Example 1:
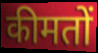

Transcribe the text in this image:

कीमतों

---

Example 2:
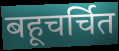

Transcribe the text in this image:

बहूचर्चित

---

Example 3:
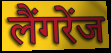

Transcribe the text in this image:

लैंगरेंज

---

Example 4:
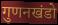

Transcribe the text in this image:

गुणनखंडो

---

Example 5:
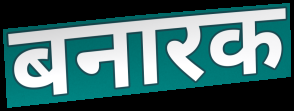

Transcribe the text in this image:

बनारक